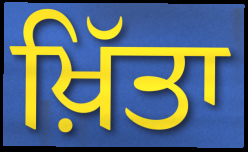
ਖ਼ਿੱਤਾ